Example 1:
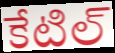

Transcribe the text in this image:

కేటిల్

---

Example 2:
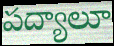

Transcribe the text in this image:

పద్యాలూ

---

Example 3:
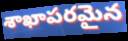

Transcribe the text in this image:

శాఖాపరమైన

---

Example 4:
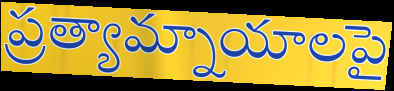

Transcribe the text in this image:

ప్రత్యామ్నాయాలపై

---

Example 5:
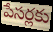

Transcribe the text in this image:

పేసర్లకు